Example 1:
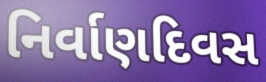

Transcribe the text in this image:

નિર્વાણદિવસ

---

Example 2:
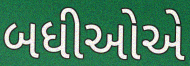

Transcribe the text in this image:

બધીઓએ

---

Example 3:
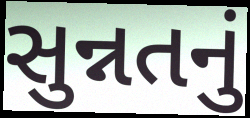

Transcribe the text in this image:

સુન્નતનું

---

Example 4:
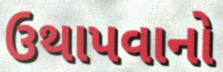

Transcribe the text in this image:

ઉથાપવાનો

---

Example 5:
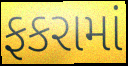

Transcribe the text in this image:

ફકરામાં